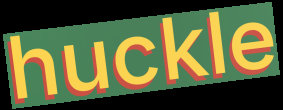
huckle